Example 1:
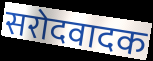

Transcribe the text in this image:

सरोदवादक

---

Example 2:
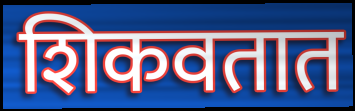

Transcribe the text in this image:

शिकवतात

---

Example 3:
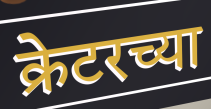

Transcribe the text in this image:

क्रेटरच्या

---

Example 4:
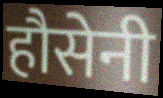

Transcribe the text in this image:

हौसेनी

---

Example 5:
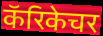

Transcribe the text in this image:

कॅरिकेचर